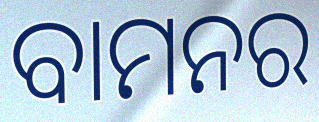
ବାମନର